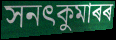
সনৎকুমাৰৰ